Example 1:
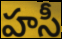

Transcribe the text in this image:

హసీ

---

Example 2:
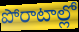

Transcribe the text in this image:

పోరాటాల్లో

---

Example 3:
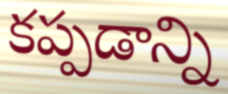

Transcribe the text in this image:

కప్పడాన్ని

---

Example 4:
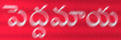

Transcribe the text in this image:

పెద్దమాయ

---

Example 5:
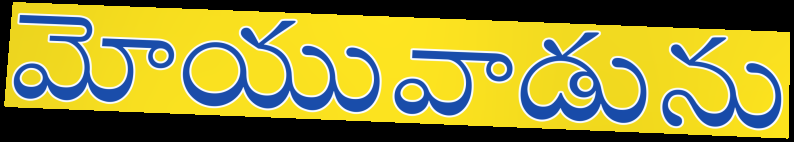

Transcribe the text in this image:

మోయువాడును